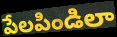
పేలపిండిలా